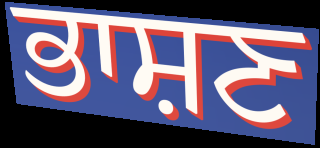
ਭਾਸ਼ਣ